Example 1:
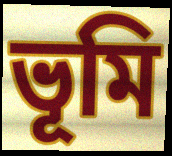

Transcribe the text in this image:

ভূমি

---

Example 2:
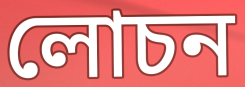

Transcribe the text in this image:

লোচন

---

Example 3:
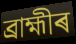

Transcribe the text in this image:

ব্ৰাহ্মীৰ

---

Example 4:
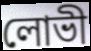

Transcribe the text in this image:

লোভী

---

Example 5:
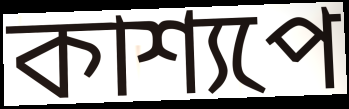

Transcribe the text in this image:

কাশ্যপে